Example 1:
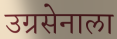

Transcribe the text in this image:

उग्रसेनाला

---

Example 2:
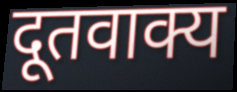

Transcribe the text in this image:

दूतवाक्य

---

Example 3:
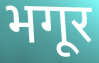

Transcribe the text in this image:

भगूर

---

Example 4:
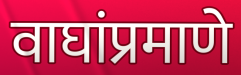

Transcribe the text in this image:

वाघांप्रमाणे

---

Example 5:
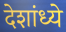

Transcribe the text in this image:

देशांध्ये